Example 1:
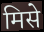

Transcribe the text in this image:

मिसे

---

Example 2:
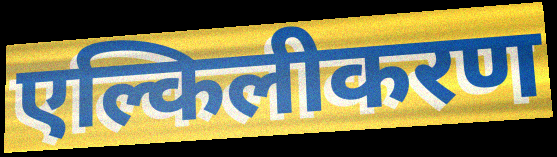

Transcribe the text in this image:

एल्किलीकरण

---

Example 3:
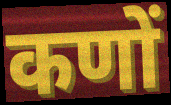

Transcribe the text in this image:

कणों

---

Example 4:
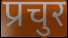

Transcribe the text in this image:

प्रचुर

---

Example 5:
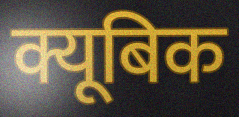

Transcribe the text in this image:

क्यूबिक